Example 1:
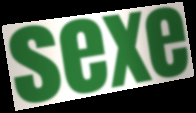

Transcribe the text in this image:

sexe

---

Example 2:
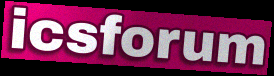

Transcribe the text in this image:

icsforum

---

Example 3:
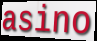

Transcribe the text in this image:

asino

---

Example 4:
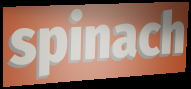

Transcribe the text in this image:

spinach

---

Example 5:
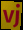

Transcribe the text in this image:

vj